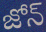
జోన్